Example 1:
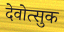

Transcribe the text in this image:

देवोत्सुक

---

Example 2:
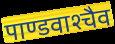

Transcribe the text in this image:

पाण्डवाश्चैव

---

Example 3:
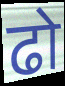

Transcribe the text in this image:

ढो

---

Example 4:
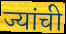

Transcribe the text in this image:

ज्यांची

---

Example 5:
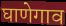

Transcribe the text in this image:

घाणेगाव